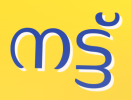
നട്ട്